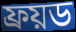
ফ্ৰয়ড